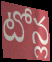
టోన్ల